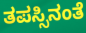
ತಪಸ್ಸಿನಂತೆ